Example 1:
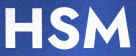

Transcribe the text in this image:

HSM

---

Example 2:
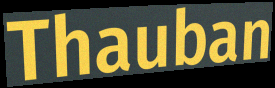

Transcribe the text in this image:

Thauban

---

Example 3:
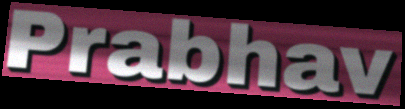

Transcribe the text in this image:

Prabhav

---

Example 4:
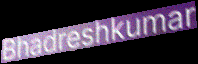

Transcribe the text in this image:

Bhadreshkumar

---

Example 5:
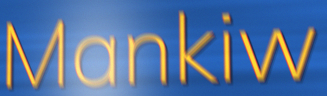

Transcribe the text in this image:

Mankiw